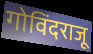
गोविंदराजू